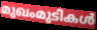
മുഖംമുടികൾ